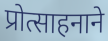
प्रोत्साहनाने